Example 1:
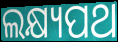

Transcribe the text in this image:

ଲକ୍ଷ୍ୟପଥ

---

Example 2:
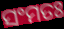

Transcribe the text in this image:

ସଂମତଃ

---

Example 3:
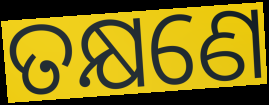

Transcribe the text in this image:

ତକ୍ଷଣେ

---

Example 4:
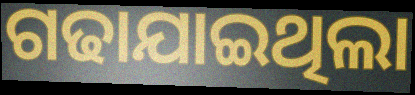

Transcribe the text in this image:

ଗଢାଯାଇଥିଲା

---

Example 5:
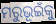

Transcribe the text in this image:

ମରୁଭୂଇଁକୁ